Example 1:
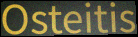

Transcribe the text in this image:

Osteitis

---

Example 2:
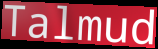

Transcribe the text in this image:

Talmud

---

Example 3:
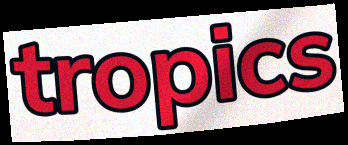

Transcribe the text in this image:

tropics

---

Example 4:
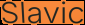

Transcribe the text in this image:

Slavic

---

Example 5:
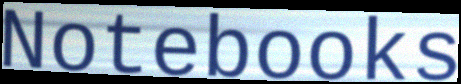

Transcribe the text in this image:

Notebooks